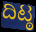
ದಿಟ್ಠ